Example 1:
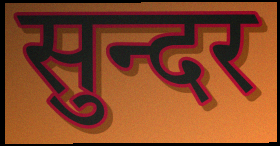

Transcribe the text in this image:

सुन्‍दर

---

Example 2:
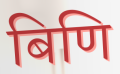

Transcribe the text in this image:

बिणि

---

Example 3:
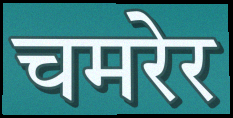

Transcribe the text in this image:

चमरेर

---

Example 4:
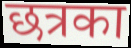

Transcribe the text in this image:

छत्रका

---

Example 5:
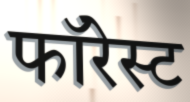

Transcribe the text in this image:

फॉरेस्‍ट